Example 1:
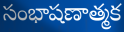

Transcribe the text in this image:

సంభాషణాత్మక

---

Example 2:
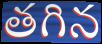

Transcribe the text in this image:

తగిన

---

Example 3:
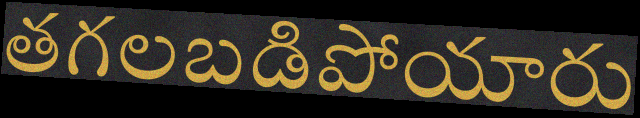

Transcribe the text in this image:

తగలబడిపోయారు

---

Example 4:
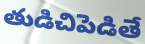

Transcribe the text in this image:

తుడిచిపెడితే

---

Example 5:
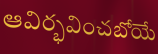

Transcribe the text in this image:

ఆవిర్భవించబోయే